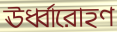
ঊর্ধ্বারোহণ